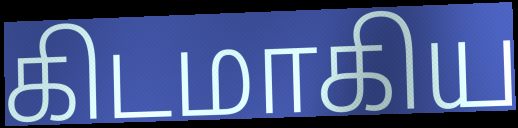
கிடமாகிய